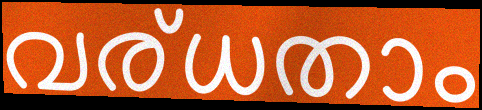
വര്ധതാം